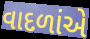
વાદળાંએ